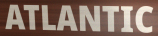
ATLANTIC